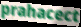
prahacect